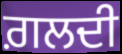
ਗ਼ਲਦੀ